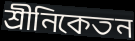
শ্রীনিকেতন